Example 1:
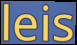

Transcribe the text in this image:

leis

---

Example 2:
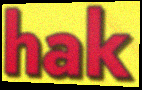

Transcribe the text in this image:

hak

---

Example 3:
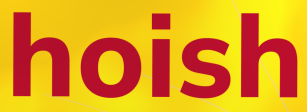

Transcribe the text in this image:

hoish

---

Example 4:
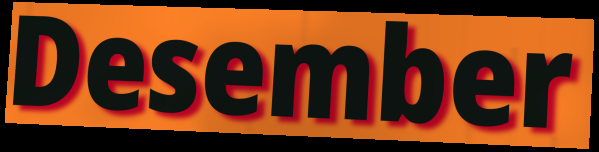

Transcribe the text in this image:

Desember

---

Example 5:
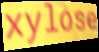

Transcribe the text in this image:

xylose